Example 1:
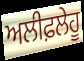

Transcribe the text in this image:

ਅਲੀਫ਼ਲੇਹੂ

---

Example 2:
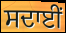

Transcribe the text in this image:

ਸਦਾਈਂ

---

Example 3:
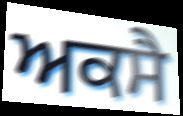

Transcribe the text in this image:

ਅਕਸੈ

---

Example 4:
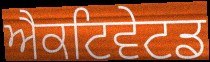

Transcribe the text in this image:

ਐਕਟਿਵੇਟਡ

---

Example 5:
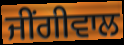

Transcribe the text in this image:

ਜੀਂਗੀਵਾਲ